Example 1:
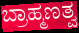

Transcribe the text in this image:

ಬ್ರಾಹ್ಮಣತ್ವ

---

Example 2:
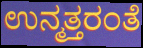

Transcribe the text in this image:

ಉನ್ಮತ್ತರಂತೆ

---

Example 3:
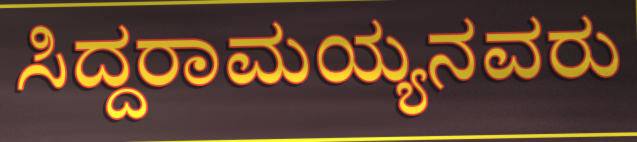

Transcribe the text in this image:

ಸಿದ್ದರಾಮಯ್ಯನವರು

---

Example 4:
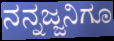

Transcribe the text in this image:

ನನ್ನಜ್ಜನಿಗೂ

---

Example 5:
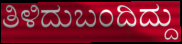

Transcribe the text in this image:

ತಿಳಿದುಬಂದಿದ್ದು